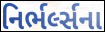
નિર્ભર્લ્સના